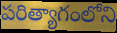
పరిత్యాగంలోని